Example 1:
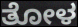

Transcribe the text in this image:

ತೋಳ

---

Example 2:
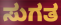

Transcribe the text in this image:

ಸುಗತ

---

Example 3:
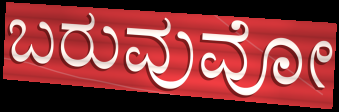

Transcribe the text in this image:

ಬರುವುವೋ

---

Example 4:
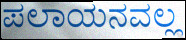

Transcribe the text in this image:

ಪಲಾಯನವಲ್ಲ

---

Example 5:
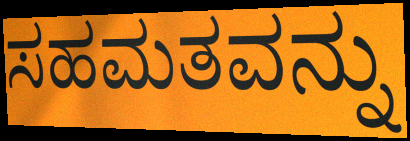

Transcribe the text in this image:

ಸಹಮತವನ್ನು